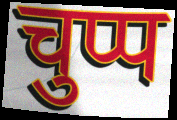
चुप्प